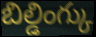
బిల్డింగ్కు